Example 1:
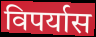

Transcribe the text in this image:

विपर्यास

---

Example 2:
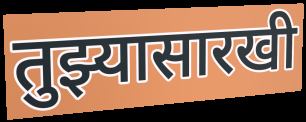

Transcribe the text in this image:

तुझ्यासारखी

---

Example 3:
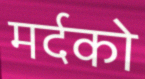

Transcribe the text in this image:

मर्दको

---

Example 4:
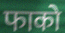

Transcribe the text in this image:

फाको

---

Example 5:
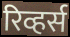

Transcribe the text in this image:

रिव्हर्स